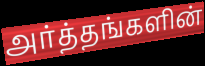
அர்த்தங்களின்